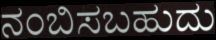
ನಂಬಿಸಬಹುದು